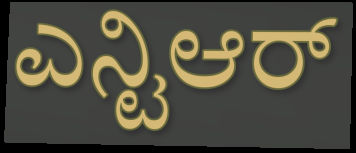
ಎನ್ಟಿಆರ್